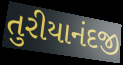
તુરીયાનંદજી